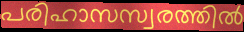
പരിഹാസസ്വരത്തിൽ